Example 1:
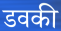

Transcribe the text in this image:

डवकी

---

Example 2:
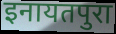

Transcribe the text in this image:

इनायतपुरा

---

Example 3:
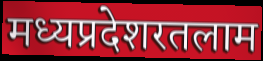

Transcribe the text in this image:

मध्यप्रदेशरतलाम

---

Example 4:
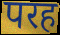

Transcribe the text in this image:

परह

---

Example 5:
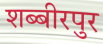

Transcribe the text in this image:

शब्‍बीरपुर